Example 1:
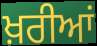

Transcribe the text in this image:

ਖ਼ਰੀਆਂ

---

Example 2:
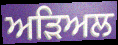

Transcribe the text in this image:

ਅੜਿਅਲ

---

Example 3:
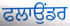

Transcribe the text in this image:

ਫਲਾਉਂਡਰ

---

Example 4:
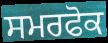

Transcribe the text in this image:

ਸਮਰਫੋਕ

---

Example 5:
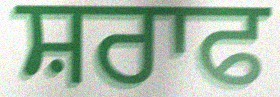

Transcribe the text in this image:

ਸ਼ਰਾਫ